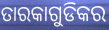
ତାରକାଗୁଡିକର